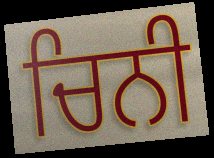
ਚਿਨੀ